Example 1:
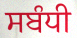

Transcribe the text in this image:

ਸਬੰਧੀ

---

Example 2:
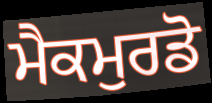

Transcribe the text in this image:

ਮੈਕਮੁਰਡੋ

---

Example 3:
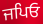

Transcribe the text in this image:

ਜਪਿਓ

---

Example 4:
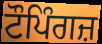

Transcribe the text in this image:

ਟੌਪਿੰਗਜ਼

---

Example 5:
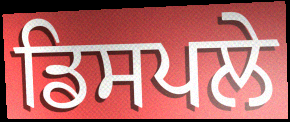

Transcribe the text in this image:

ਡਿਸਪਲੇ